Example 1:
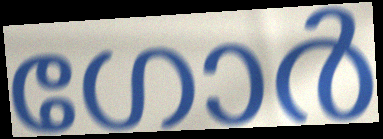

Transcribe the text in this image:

ഗോർ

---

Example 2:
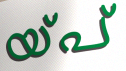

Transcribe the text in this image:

യ്പ്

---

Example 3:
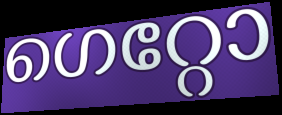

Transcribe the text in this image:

ഗെറ്റോ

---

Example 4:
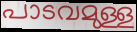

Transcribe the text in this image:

പാടവമുള്ള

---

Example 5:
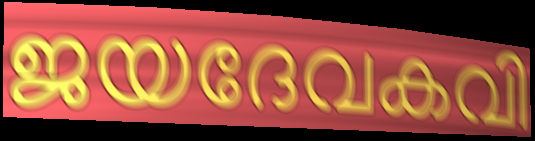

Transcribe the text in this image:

ജയദേവകവി